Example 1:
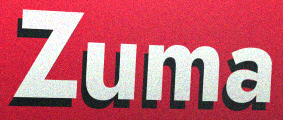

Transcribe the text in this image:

Zuma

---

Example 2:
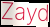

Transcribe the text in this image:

Zayd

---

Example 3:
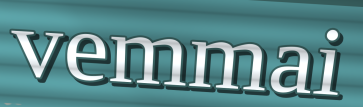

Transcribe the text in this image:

vemmai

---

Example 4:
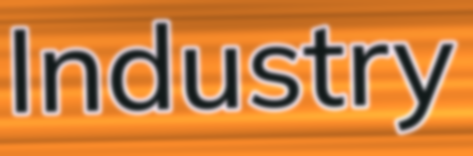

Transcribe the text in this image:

Industry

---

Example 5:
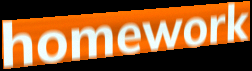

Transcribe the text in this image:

homework